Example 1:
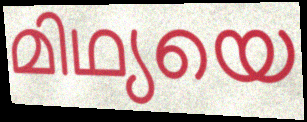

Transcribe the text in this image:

മിഥ്യയെ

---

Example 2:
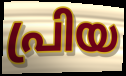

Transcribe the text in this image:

പ്രിയ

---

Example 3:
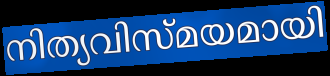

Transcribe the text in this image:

നിത്യവിസ്മയമായി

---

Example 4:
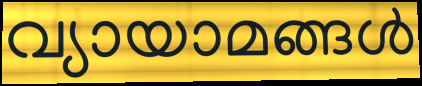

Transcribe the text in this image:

വ്യായാമങ്ങൾ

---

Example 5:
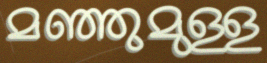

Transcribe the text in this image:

മഞ്ഞുമുള്ള